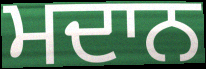
ਮਦਾਨ